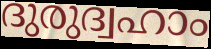
ദുരുദ്വഹാം